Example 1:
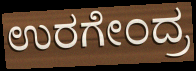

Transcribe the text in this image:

ಉರಗೇಂದ್ರ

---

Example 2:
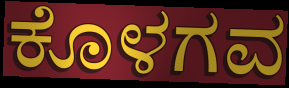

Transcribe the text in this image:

ಕೊಳಗವ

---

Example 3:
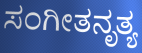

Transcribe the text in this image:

ಸಂಗೀತನೃತ್ಯ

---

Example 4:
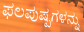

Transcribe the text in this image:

ಫಲಪುಷ್ಪಗಳನ್ನು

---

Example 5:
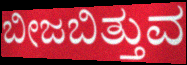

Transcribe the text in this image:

ಬೀಜಬಿತ್ತುವ